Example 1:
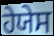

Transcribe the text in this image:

ਹੇਯੇਸ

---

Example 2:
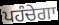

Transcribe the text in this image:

ਪਹੰਚੇਗਾ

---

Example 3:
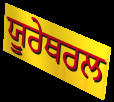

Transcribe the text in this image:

ਯੂਰੇਥਰਲ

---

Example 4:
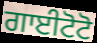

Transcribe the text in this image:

ਗਾਈਟੋਟੋ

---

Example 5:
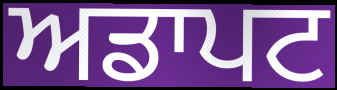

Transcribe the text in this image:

ਅਡਾਪਟ